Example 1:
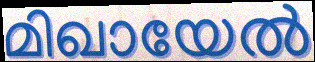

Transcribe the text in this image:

മിഖായേൽ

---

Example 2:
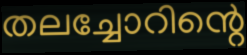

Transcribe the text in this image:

തലച്ചോറിന്റെ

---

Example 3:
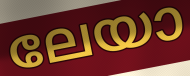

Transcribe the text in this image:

ലേയാ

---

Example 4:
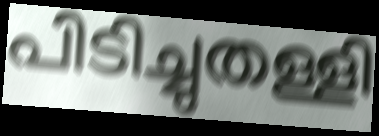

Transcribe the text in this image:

പിടിച്ചുതള്ളി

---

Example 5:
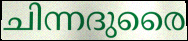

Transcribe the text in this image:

ചിന്നദുരൈ